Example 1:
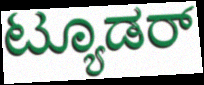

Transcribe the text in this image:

ಟ್ಯೂಡರ್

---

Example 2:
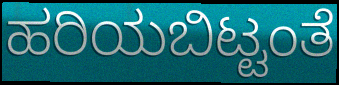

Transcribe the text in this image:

ಹರಿಯಬಿಟ್ಟಂತೆ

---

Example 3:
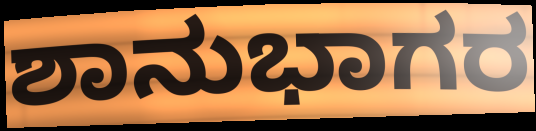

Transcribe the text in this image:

ಶಾನುಭಾಗರ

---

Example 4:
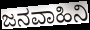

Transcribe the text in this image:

ಜನವಾಹಿನಿ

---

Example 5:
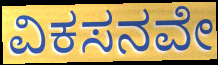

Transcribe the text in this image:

ವಿಕಸನವೇ